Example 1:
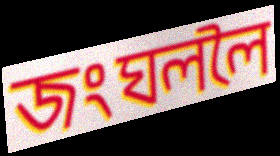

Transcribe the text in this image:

জংঘললৈ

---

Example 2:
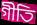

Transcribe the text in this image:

গীতি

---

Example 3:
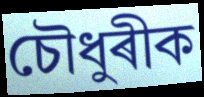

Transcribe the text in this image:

চৌধুৰীক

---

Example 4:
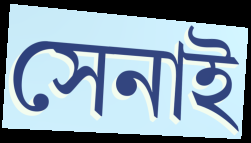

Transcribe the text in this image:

সেনাই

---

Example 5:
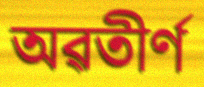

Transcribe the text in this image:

অৱতীৰ্ণ